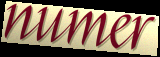
numer